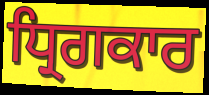
ਧ੍ਰਿਗਕਾਰ